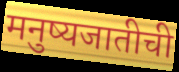
मनुष्यजातीची